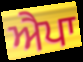
ਐਪਾ